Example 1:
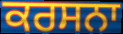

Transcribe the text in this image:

ਕਰਸਨਾ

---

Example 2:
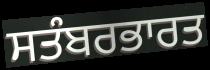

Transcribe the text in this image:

ਸਤੰਬਰਭਾਰਤ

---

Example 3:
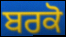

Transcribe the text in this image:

ਬਰਕੋ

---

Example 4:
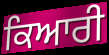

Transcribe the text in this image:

ਕਿਆਰੀ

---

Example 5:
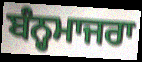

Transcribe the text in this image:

ਬੰਨ੍ਹਮਾਜਰਾ